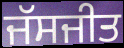
ਜੱਸਜੀਤ